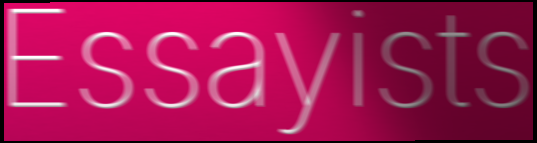
Essayists